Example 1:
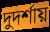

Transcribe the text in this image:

দুদর্শায়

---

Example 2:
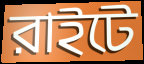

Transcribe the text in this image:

রাইটে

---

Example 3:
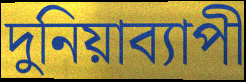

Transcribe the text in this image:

দুনিয়াব্যাপী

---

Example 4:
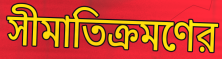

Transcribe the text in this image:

সীমাতিক্রমণের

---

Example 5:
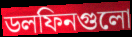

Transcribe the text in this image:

ডলফিনগুলো